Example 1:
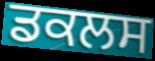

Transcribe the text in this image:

ਡਕਲਸ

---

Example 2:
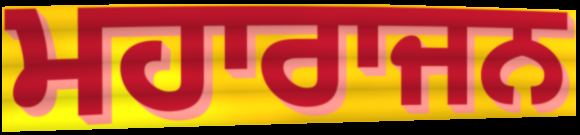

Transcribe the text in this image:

ਮਹਾਰਾਜਨ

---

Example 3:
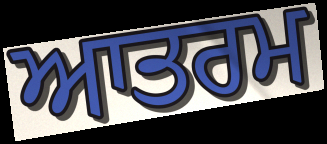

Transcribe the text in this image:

ਆਤਰਮ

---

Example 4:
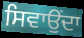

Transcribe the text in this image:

ਸਿਵਾਉਂਦਾ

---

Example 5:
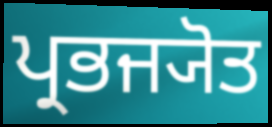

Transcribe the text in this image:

ਪ੍ਰਭਜ੍ਯੋਤ